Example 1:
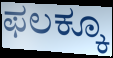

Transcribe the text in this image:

ಫಲಕ್ಕೂ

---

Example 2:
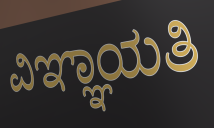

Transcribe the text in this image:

ವಿಞ್ಞಾಯತಿ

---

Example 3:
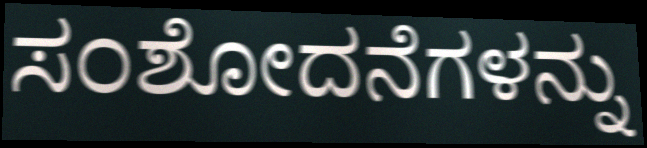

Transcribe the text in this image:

ಸಂಶೋದನೆಗಳನ್ನು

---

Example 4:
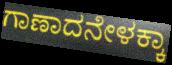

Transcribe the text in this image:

ಗಾಣಾದನೇಳಕ್ಕಾ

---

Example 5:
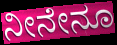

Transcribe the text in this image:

ನೀನೇನೂ